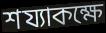
শয্যাকক্ষে